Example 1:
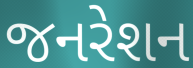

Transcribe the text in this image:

જનરેશન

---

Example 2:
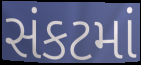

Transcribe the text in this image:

સંકટમાં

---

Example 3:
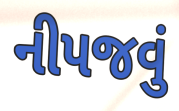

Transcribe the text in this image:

નીપજવું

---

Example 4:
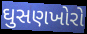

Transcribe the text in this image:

ઘુસણખોરો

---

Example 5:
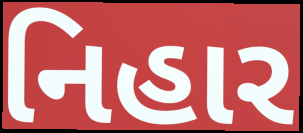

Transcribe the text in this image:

નિહાર